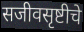
सजीवसृष्टीचे